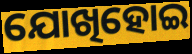
ଯୋଖିହୋଇ